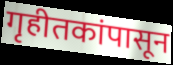
गृहीतकांपासून